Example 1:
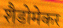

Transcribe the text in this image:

शैडोमेकर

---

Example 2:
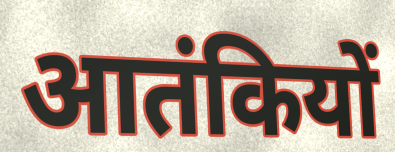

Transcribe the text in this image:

आतंकियों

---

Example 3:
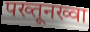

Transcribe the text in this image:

पख्तूनख्वा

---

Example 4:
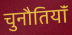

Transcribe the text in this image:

चुनौतियॉं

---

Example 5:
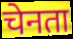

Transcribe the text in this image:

चेनता